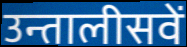
उन्तालीसवें